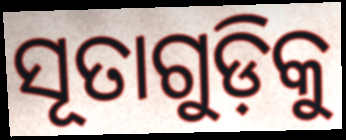
ସୂତାଗୁଡ଼ିକୁ